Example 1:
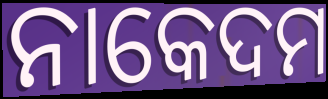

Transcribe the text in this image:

ନାକେଦମ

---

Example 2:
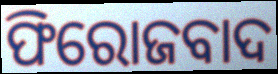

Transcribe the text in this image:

ଫିରୋଜବାଦ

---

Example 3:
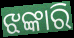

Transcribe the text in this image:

ଝଙ୍କାରି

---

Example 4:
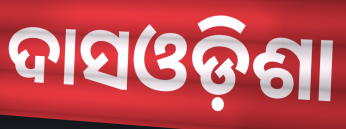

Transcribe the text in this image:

ଦାସଓଡ଼ିଶା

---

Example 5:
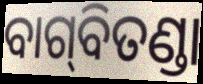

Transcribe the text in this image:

ବାଗ୍‍ବିତଣ୍ଡା